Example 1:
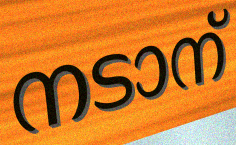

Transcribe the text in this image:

നടാന്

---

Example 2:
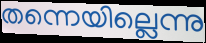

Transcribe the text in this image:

തന്നെയില്ലെന്നു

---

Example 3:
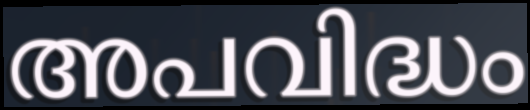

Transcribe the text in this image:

അപവിദ്ധം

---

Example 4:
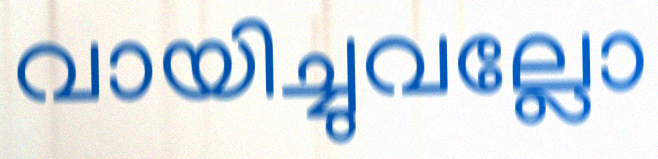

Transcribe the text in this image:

വായിച്ചുവല്ലോ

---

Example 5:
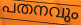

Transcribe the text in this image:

പതനവും